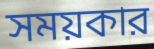
সময়কার